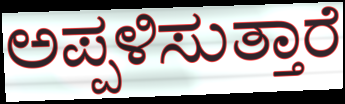
ಅಪ್ಪಳಿಸುತ್ತಾರೆ